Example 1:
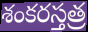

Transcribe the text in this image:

శంకరస్తత్ర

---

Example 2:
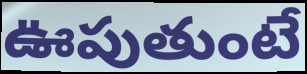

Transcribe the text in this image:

ఊపుతుంటే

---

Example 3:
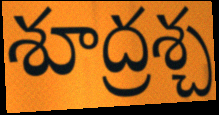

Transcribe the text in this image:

శూద్రశ్చ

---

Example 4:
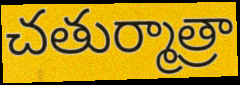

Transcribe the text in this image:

చతుర్మాత్రా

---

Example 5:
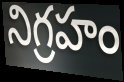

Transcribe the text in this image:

నిగ్రహం